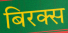
बिरक्स